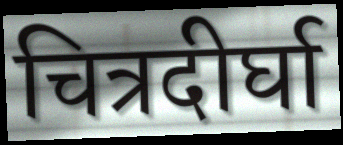
चित्रदीर्घा